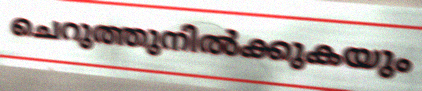
ചെറുത്തുനിൽക്കുകയും